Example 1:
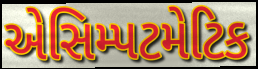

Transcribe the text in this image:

એસિમ્પટમેટિક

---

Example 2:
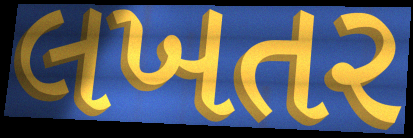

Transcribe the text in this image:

લખતર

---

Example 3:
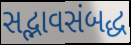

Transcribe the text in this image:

સદ્ભાવસંબદ્ધ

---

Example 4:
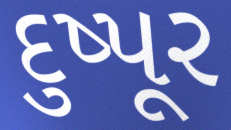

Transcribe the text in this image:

દુષ્પૂર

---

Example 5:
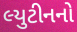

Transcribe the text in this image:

લ્યુટીનનો